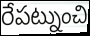
రేపట్నుంచి